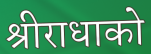
श्रीराधाको